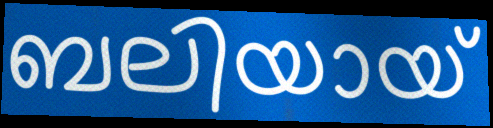
ബലിയായ്